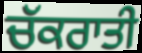
ਚੱਕਰਾਤੀ